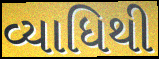
વ્યાધિથી